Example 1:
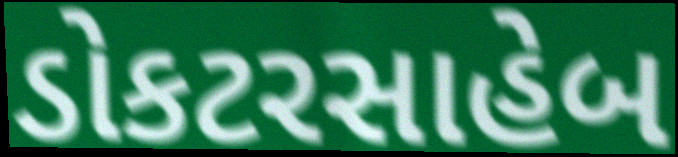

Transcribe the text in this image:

ડોકટરસાહેબ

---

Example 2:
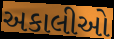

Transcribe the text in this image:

અકાલીઓ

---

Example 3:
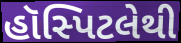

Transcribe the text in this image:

હૉસ્પિટલેથી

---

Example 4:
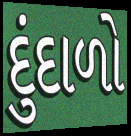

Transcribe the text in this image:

દુંદાળો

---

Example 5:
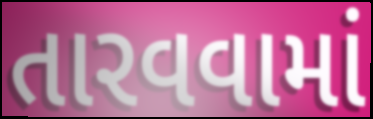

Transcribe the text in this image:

તારવવામાં